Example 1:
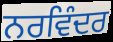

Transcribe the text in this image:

ਨਰਵਿੰਦਰ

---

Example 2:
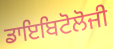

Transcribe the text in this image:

ਡਾਇਬਿਟੋਲੋਜੀ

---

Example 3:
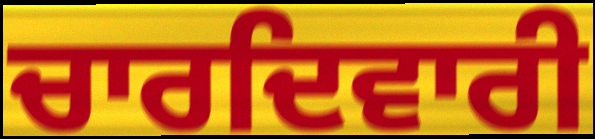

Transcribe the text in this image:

ਚਾਰਦਿਵਾਰੀ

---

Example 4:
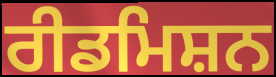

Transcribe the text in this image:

ਰੀਡਮਿਸ਼ਨ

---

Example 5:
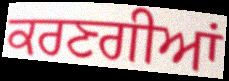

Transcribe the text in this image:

ਕਰਣਗੀਆਂ